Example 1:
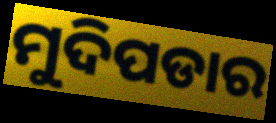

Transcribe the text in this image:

ମୁଦିପଡାର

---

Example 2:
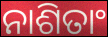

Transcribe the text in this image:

ନାଶିତାଂ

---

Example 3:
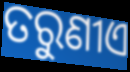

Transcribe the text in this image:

ତରୁଣୀଏ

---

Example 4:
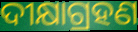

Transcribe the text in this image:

ଦୀକ୍ଷାଗ୍ରହଣ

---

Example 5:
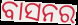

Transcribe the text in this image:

ବାସନର